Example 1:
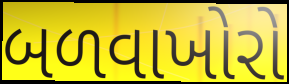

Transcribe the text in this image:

બળવાખોરો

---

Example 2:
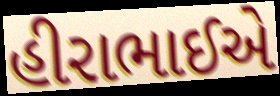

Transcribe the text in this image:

હીરાભાઈએ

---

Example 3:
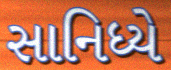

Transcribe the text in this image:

સાનિધ્યે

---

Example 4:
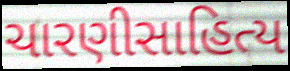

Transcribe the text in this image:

ચારણીસાહિત્ય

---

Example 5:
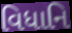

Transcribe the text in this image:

વિધાનિ